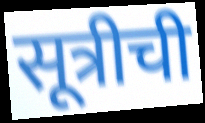
सूत्रीची